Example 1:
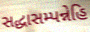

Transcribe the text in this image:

સદ્ધાસમ્પન્નેહિ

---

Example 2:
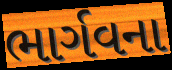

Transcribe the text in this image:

ભાર્ગવના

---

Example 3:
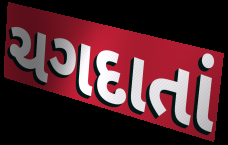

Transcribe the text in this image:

ચગદાતાં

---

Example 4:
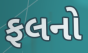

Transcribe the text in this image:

ફલનો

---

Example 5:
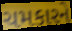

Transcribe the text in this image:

ચમકારને